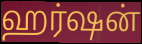
ஹர்ஷன்